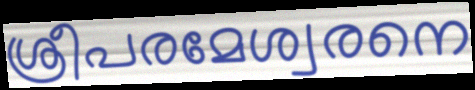
ശ്രീപരമേശ്വരനെ